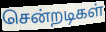
சென்றடிகள்